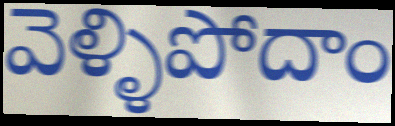
వెళ్ళిపోదాం